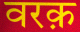
वरक़